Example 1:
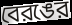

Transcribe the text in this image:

বেরঙের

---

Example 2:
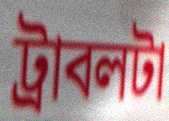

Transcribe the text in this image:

ট্রাবলটা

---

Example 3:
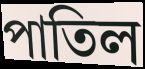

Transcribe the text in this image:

পাতিল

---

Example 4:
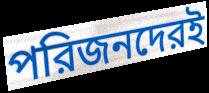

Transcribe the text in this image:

পরিজনদেরই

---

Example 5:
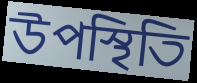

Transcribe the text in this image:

উপস্থিতি